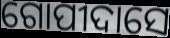
ଗୋପୀଦାସେ